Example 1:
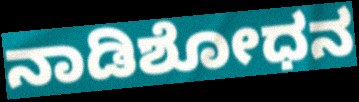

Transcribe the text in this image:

ನಾಡಿಶೋಧನ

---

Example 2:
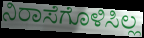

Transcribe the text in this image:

ನಿರಾಸೆಗೊಳಿಸಿಲ್ಲ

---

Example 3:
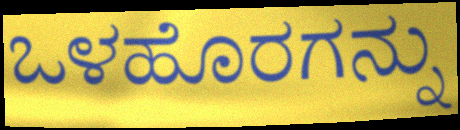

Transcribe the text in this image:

ಒಳಹೊರಗನ್ನು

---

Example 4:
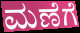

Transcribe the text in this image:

ಮಣೆಗೆ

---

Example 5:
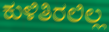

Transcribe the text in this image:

ಕುಳಿತಿರಲಿಲ್ಲ